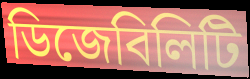
ডিজেবিলিটি